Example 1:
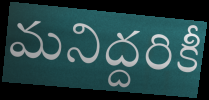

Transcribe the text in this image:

మనిద్దరికీ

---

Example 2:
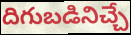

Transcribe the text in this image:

దిగుబడినిచ్చే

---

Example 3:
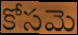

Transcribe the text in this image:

కోసమె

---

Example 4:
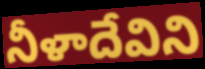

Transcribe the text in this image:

నీళాదేవిని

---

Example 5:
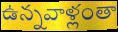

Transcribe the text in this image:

ఉన్నవాళ్లంతా